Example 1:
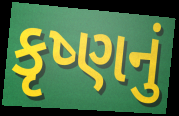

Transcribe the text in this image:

કૃષ્ણનું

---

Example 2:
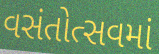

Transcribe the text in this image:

વસંતોત્સવમાં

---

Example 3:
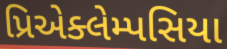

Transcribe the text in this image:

પ્રિએક્લેમ્પસિયા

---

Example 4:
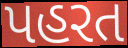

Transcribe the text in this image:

પહરત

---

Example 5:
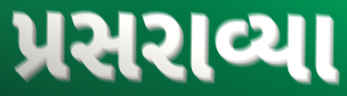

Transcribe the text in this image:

પ્રસરાવ્યા